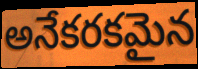
అనేకరకమైన